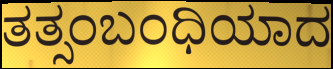
ತತ್ಸಂಬಂಧಿಯಾದ